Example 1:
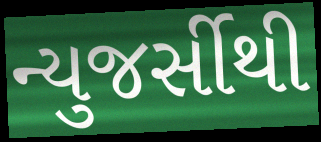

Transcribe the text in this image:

ન્યુજર્સીથી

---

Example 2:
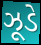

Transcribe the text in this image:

ઝૂડે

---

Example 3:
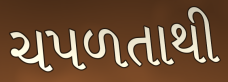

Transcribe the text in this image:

ચપળતાથી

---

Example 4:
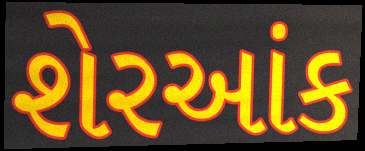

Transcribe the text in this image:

શેરઆંક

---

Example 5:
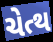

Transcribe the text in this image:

ચેત્થ